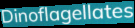
Dinoflagellates